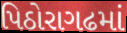
પિઠોરાગઢમાં